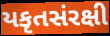
યકૃતસંરક્ષી